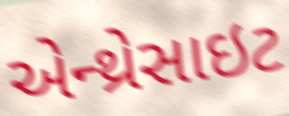
એન્થ્રેસાઇટ